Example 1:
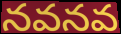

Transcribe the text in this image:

నవనవ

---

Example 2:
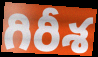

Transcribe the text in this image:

గిరీశ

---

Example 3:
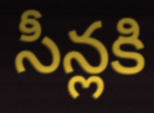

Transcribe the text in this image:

సీన్లకి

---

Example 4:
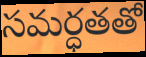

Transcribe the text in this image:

సమర్ధతతో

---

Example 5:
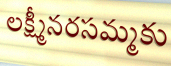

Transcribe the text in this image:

లక్ష్మీనరసమ్మకు